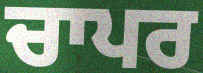
ਚਾਪਰ